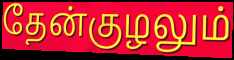
தேன்குழலும்